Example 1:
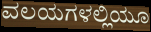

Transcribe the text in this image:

ವಲಯಗಳಲ್ಲಿಯೂ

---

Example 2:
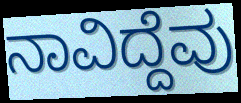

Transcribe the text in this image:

ನಾವಿದ್ದೆವು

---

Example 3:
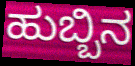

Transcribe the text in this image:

ಹುಬ್ಬಿನ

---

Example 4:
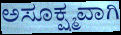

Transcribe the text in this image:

ಅಸೂಕ್ಷ್ಮವಾಗಿ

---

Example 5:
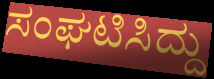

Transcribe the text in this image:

ಸಂಘಟಿಸಿದ್ದು